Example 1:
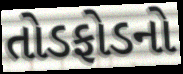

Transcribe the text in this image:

તોડફોડનો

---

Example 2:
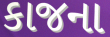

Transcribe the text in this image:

કાજના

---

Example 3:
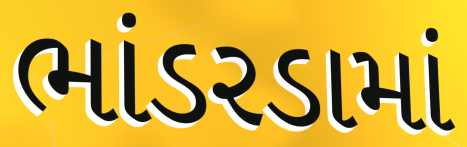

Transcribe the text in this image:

ભાંડરડામાં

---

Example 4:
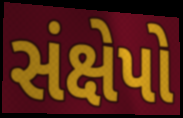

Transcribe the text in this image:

સંક્ષેપો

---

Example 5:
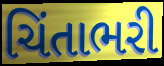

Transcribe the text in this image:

ચિંતાભરી